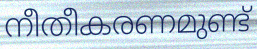
നീതീകരണമുണ്ട്